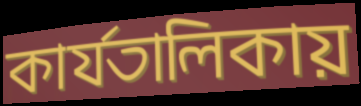
কার্যতালিকায়